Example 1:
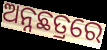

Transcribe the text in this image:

ଅନ୍ନଛତ୍ରରେ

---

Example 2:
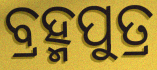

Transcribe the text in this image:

ବ୍ରହ୍ମପୁତ୍ର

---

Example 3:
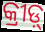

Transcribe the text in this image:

କ୍ରୀଡ଼୍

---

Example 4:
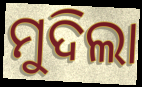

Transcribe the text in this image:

ମୁଦିଲା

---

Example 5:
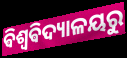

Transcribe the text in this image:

ଵିଶ୍ୱଵିଦ୍ୟାଳୟରୁ